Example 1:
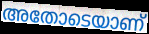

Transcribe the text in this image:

അതോടെയാണ്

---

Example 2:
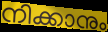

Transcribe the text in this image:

നിക്കാനും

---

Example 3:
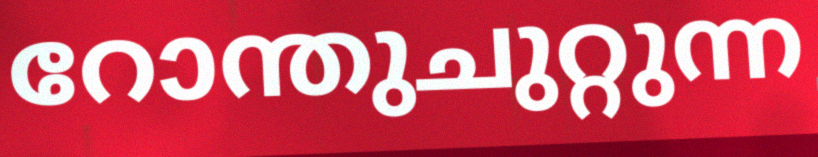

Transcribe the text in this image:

റോന്തുചുറ്റുന്ന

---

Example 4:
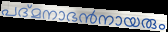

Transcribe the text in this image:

പദ്മനാഭൻനായരും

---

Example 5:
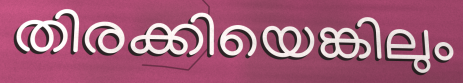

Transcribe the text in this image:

തിരക്കിയെങ്കിലും